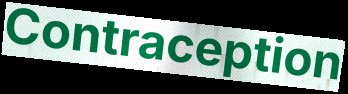
Contraception